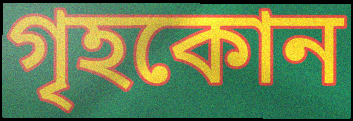
গৃহকোন